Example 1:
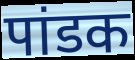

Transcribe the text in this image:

पांडक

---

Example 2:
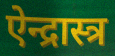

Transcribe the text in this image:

ऐन्द्रास्त्र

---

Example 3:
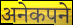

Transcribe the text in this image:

अनेकपने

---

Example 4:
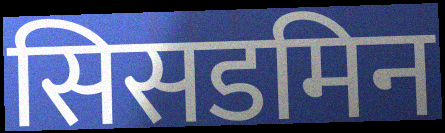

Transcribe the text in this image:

सिसडमिन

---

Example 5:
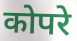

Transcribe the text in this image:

कोपरे